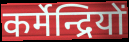
कर्मेन्द्रियों